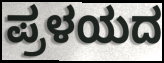
ಪ್ರಳಯದ